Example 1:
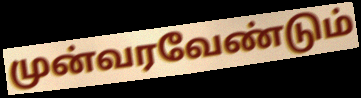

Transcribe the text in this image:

முன்வரவேண்டும்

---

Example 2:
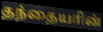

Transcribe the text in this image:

தந்தையரின்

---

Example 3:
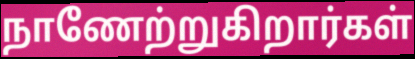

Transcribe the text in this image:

நாணேற்றுகிறார்கள்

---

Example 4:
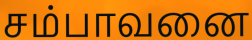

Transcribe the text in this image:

சம்பாவனை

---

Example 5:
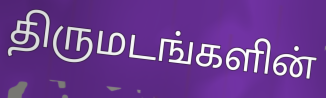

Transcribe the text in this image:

திருமடங்களின்